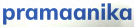
pramaanika